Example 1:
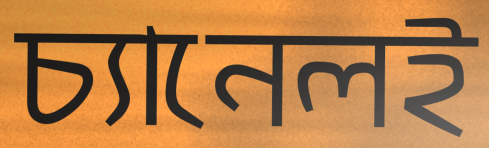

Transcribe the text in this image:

চ্যানেলই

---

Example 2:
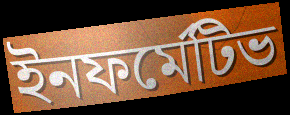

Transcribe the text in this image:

ইনফর্মেটিভ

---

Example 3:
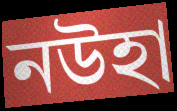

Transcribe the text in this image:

নউহা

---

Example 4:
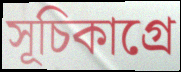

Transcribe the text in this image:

সূচিকাগ্রে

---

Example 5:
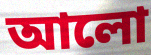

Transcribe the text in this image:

আলো